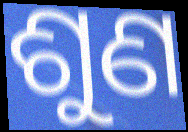
ଶୁଣ